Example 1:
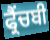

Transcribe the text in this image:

ਫ੍ਰੈਂਚਬੀ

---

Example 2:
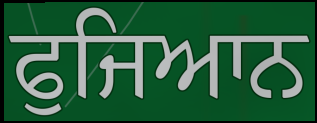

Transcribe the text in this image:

ਫੁਜਿਆਨ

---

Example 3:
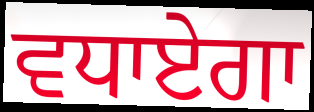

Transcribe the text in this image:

ਵਧਾਏਗਾ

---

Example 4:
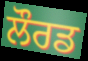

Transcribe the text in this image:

ਲੌਰਡ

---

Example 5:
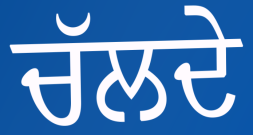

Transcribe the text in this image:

ਚੱਲਦੇ